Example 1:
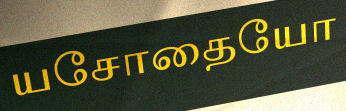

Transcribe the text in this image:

யசோதையோ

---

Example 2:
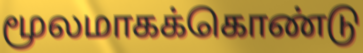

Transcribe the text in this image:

மூலமாகக்கொண்டு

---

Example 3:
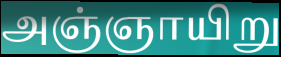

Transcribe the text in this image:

அஞ்ஞாயிறு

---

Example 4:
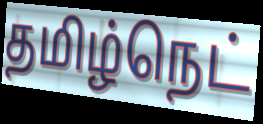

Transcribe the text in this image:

தமிழ்நெட்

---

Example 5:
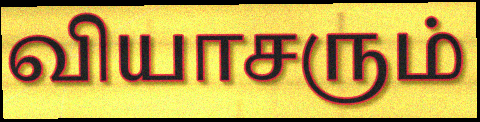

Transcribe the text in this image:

வியாசரும்